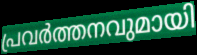
പ്രവർത്തനവുമായി